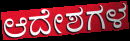
ಆದೇಶಗಳ